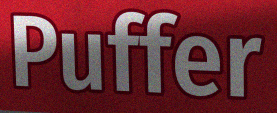
Puffer